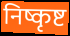
निष्कृष्ट